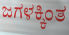
ಜಗಳಕ್ಕಿಂತ